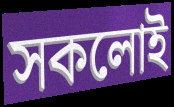
সকলোই